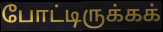
போட்டிருக்கக்